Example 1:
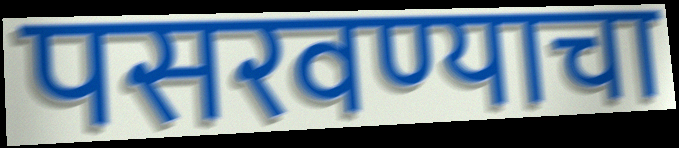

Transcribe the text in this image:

पसरवण्याचा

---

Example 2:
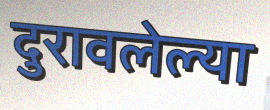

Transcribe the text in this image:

दुरावलेल्या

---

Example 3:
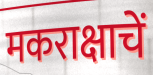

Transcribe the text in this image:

मकराक्षाचें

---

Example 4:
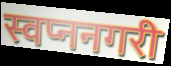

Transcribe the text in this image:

स्वप्ननगरी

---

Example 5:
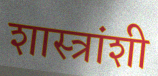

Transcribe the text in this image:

शास्त्रांशी